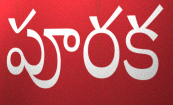
పూరక